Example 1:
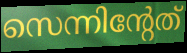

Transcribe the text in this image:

സെന്നിന്റേത്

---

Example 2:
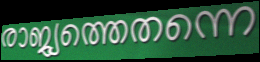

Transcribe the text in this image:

രാജ്യത്തെതന്നെ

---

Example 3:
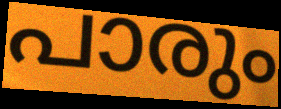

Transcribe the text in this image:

പാരും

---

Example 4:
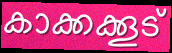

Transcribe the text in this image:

കാക്കക്കൂട്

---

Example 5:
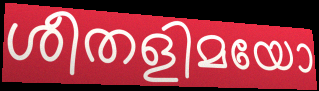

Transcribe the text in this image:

ശീതളിമയോ